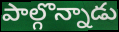
పాల్గొన్నాడు